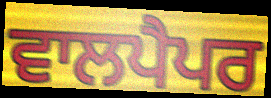
ਵਾਲਪੈਪਰ